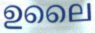
ഉലൈ